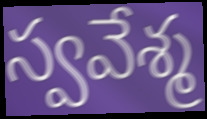
స్వవేశ్మ